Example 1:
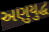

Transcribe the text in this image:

અણુયુદ્ધ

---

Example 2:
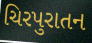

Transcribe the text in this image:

ચિરપુરાતન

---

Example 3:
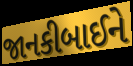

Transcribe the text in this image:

જાનકીબાઈને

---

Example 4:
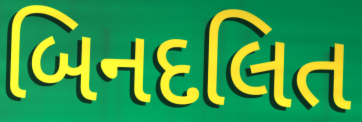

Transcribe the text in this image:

બિનદલિત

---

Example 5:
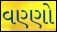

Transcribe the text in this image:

વણ્ણો